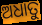
ଅଧାତୁ